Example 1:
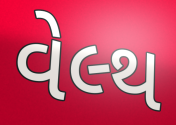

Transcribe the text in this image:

વેલ્થ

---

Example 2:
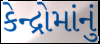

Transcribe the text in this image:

કેન્દ્રોમાંનું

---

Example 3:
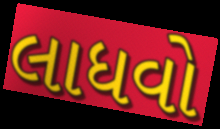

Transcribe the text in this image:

લાધવો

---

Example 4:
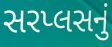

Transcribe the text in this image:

સરપ્લસનું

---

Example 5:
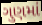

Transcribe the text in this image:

ગુણમાં